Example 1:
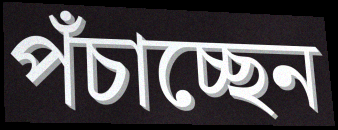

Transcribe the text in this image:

পঁচাচ্ছেন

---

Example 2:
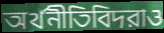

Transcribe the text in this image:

অর্থনীতিবিদরাও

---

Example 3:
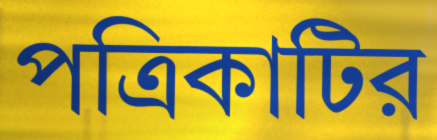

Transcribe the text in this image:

পত্রিকাটির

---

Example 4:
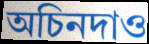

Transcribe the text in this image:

অচিনদাও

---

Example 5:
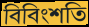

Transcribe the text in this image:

বিবিংশতি